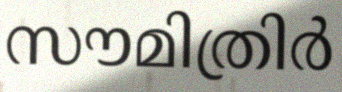
സൗമിത്രിർ